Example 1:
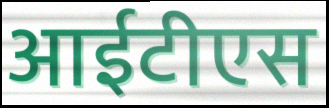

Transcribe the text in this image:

आईटीएस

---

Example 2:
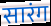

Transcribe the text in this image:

सारंग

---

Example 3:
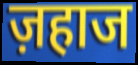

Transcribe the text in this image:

ज़हाज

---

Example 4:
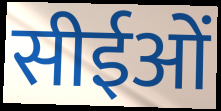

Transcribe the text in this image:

सीईओं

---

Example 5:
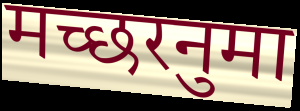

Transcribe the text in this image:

मच्छरनुमा